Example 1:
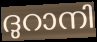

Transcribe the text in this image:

ദുറാനി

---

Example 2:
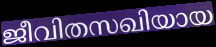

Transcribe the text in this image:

ജീവിതസഖിയായ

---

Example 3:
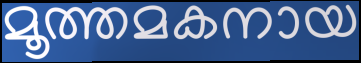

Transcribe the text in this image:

മൂത്തമകനായ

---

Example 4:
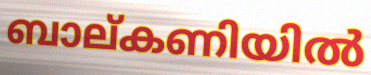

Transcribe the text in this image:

ബാല്കണിയിൽ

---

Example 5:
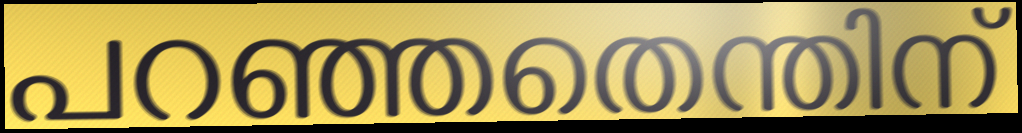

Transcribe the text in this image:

പറഞ്ഞതെന്തിന്